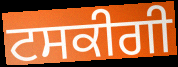
ਟਸਕੀਗੀ